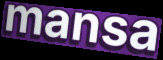
mansa